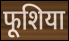
फूशिया